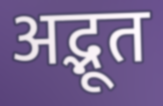
अद्भूत